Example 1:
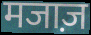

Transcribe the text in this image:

मजाज़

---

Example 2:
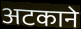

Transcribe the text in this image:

अटकाने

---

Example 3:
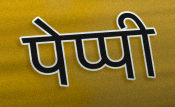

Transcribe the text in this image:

पेप्पी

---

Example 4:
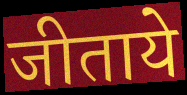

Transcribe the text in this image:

जीताये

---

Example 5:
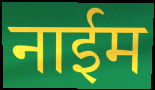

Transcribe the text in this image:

नाईम